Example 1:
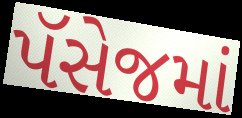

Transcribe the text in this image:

પૅસેજમાં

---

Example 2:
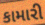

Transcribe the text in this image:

કામારી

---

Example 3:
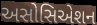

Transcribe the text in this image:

અસોસિએશન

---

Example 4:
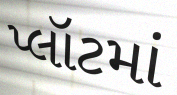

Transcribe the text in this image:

પ્લૉટમાં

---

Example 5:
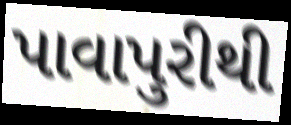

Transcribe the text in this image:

પાવાપુરીથી